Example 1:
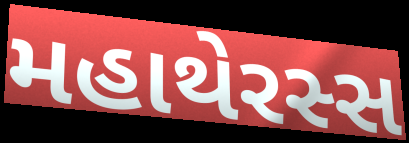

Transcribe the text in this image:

મહાથેરસ્સ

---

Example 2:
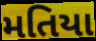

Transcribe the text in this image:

મતિયા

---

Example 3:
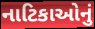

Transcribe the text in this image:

નાટિકાઓનું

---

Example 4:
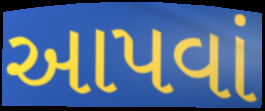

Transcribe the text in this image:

આપવાં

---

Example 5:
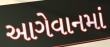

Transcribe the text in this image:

આગેવાનમાં